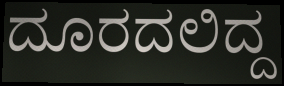
ದೂರದಲಿದ್ದ